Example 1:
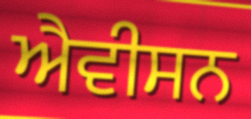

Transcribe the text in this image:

ਐਵੀਸਨ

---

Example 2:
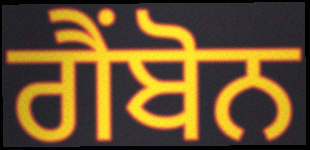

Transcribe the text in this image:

ਗੈਂਬੋਨ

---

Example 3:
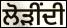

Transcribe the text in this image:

ਲੋੜੀਂਦੀ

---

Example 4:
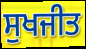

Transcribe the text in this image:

ਸੁਖਜੀਤ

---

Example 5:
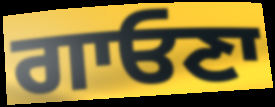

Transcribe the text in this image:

ਗਾਓਣਾ